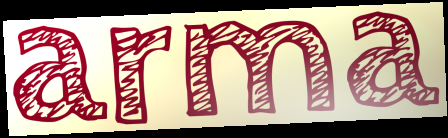
arma